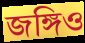
জঙ্গিও